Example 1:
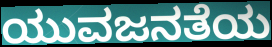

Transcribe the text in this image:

ಯುವಜನತೆಯ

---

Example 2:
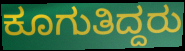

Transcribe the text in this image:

ಕೂಗುತಿದ್ದರು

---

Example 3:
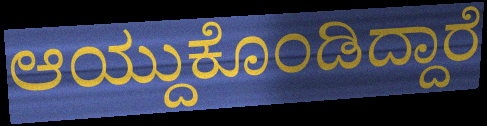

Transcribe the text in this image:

ಆಯ್ದುಕೊಂಡಿದ್ದಾರೆ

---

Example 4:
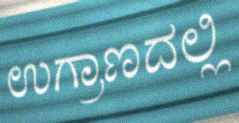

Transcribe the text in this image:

ಉಗ್ರಾಣದಲ್ಲಿ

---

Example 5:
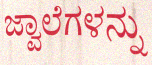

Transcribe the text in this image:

ಜ್ವಾಲೆಗಳನ್ನು